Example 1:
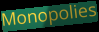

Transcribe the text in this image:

Monopolies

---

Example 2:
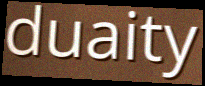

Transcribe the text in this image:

duaity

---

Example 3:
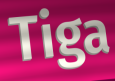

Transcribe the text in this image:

Tiga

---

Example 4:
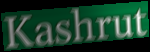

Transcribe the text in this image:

Kashrut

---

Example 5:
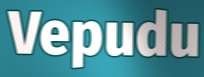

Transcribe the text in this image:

Vepudu